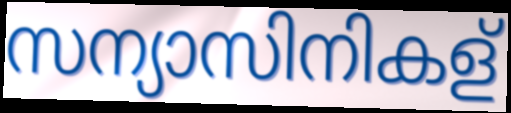
സന്യാസിനികള്